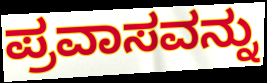
ಪ್ರವಾಸವನ್ನು